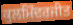
ਕੁਲਮਿੰਦਰਜੀਤ